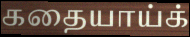
கதையாய்க்